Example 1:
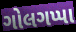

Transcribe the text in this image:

ગોલગપ્પા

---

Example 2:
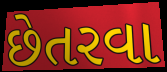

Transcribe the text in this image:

છેતરવા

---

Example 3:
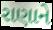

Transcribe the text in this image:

રાણાને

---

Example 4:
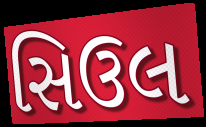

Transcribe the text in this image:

સિઉલ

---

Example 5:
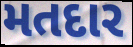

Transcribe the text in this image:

મતદાર